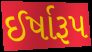
ઈર્ષારૂપ